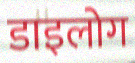
डाइलोग